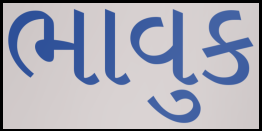
ભાવુક